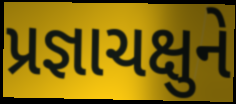
પ્રજ્ઞાચક્ષુને